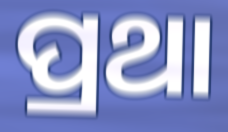
ପ୍ରଥା